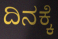
ದಿನಕ್ಕೆ